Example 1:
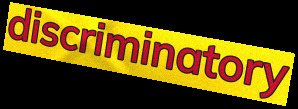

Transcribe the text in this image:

discriminatory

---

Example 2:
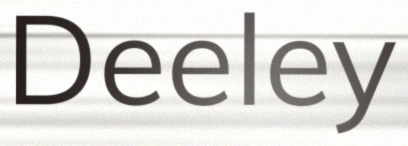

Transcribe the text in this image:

Deeley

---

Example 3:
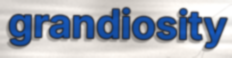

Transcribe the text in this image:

grandiosity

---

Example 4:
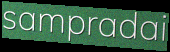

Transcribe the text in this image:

sampradai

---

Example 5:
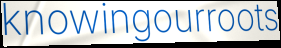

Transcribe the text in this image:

knowingourroots